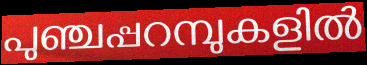
പുഞ്ചപ്പറമ്പുകളിൽ